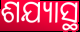
ଶଯ୍ୟାସ୍ଥ